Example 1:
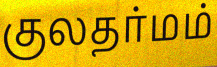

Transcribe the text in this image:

குலதர்மம்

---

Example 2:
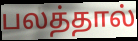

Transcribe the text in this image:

பலத்தால்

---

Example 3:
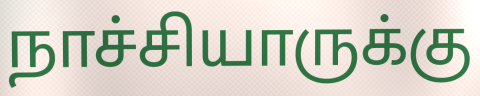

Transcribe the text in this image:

நாச்சியாருக்கு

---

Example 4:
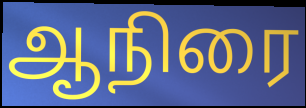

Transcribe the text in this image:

ஆநிரை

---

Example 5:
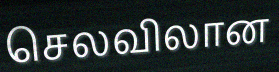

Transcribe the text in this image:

செலவிலான